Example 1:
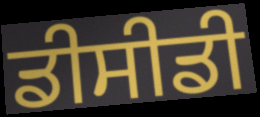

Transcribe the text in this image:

ਡੀਸੀਡੀ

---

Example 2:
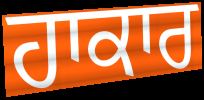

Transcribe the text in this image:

ਹਾਕਾਰ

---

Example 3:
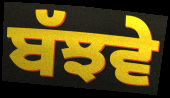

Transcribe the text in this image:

ਬੱਝਵੇ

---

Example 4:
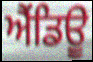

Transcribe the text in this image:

ਐਂਡਿਊ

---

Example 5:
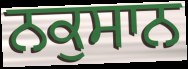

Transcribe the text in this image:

ਨਕੁਸਾਨ